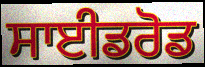
ਸਾਈਡਰੋਡ